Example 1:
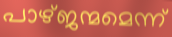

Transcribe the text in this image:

പാഴ്ജന്മമെന്ന്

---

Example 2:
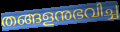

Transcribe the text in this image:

തങ്ങളനുഭവിച്ച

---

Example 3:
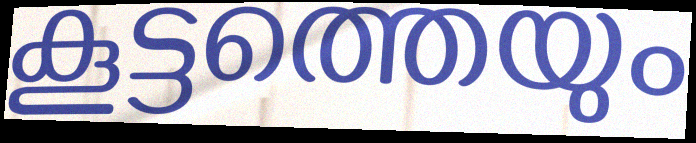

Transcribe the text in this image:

കൂട്ടത്തെയും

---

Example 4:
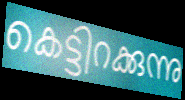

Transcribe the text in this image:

കെട്ടിറക്കുന്നു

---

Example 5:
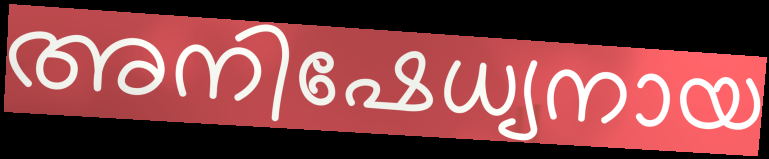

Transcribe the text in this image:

അനിഷേധ്യനായ